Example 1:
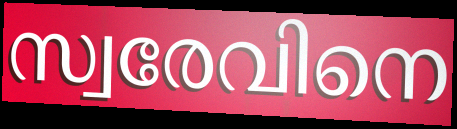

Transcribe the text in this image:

സ്വരേവിനെ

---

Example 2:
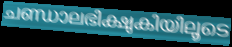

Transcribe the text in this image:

ചണ്ഡാലഭിക്ഷുകിയിലൂടെ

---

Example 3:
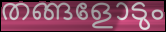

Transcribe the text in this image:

തങ്ങളോടും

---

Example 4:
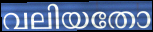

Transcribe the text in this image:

വലിയതോ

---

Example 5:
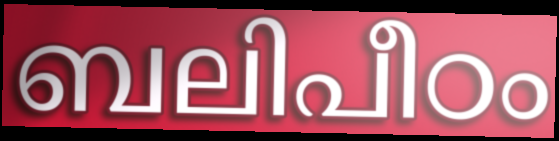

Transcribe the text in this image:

ബലിപീഠം